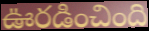
ఊరడించింది